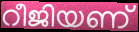
റീജിയണ്